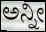
ಅನ್ನೀ